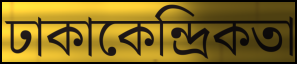
ঢাকাকেন্দ্রিকতা